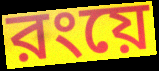
রংয়ে